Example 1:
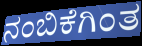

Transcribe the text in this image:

ನಂಬಿಕೆಗಿಂತ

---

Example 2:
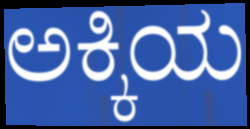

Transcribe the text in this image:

ಅಕ್ಕಿಯ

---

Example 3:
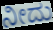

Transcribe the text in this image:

ನೀದು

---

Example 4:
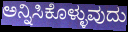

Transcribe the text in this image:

ಅನ್ನಿಸಿಕೊಳ್ಳುವುದು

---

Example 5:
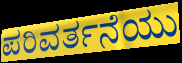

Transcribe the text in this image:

ಪರಿವರ್ತನೆಯು